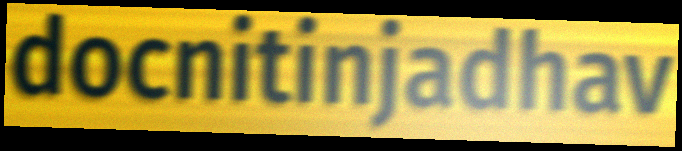
docnitinjadhav